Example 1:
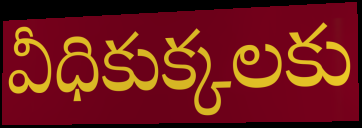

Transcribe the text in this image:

వీధికుక్కలకు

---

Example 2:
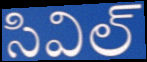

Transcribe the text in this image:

సివిల్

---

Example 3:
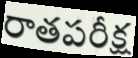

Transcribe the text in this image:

రాతపరీక్ష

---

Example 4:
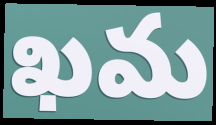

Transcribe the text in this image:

ఖమ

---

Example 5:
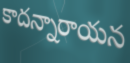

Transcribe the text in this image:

కాదన్నారాయన